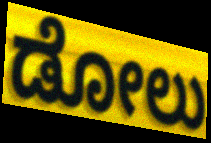
ಡೋಲು